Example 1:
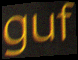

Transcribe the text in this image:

guf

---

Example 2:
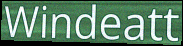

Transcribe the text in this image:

Windeatt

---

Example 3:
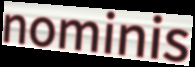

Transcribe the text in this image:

nominis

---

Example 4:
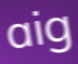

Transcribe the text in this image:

aig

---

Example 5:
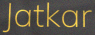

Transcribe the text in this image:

Jatkar